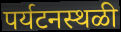
पर्यटनस्थळी